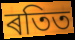
ৰতিত